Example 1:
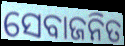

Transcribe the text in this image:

ସେବାଜନିତ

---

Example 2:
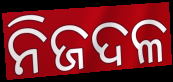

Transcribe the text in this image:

ନିଜଦଳ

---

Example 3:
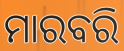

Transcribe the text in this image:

ମାରବରି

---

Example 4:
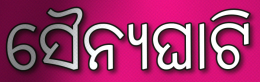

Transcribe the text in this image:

ସୈନ୍ୟଘାଟି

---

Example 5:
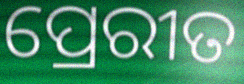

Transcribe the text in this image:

ପ୍ରେରୀତ